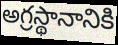
అగ్రస్థానానికి